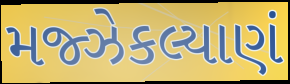
મજ્ઝેકલ્યાણં